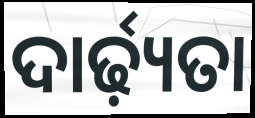
ଦାର୍ଢ଼୍ୟତା